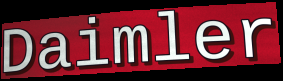
Daimler